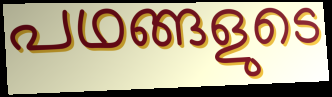
പഥങ്ങളുടെ